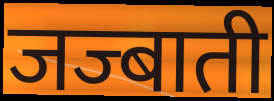
जज्‍बाती